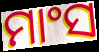
ମାଂସ